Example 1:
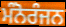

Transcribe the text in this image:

ਮੰਨੋਰੰਜਨ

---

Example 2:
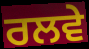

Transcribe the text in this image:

ਰਲਵੇ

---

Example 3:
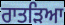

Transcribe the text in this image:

ਰਾਤੜਿਆ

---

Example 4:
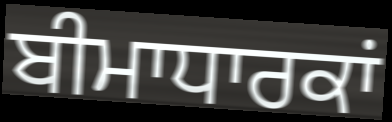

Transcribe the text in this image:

ਬੀਮਾਧਾਰਕਾਂ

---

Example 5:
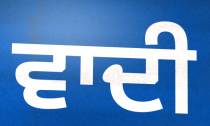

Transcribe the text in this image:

ਵਾਦੀ